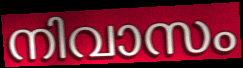
നിവാസം